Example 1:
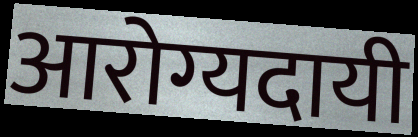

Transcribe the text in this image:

आरोग्यदायी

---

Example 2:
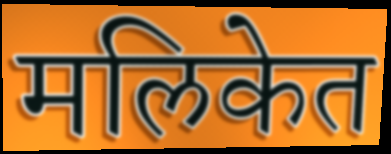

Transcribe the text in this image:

मलिकेत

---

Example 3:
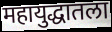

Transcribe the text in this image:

महायुद्धातला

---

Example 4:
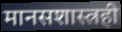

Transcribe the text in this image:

मानसशास्त्रही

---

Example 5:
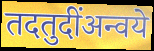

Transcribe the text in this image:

तदतुदींअन्वये